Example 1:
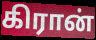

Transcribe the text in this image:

கிரான்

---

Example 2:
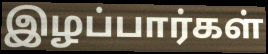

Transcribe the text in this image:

இழப்பார்கள்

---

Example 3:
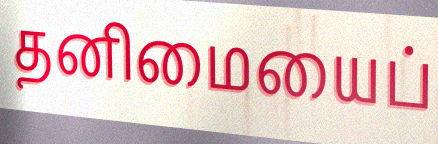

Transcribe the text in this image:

தனிமையைப்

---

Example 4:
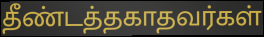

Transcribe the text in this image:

தீண்டத்தகாதவர்கள்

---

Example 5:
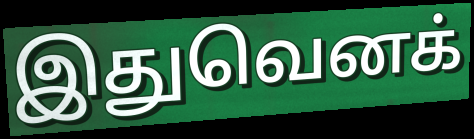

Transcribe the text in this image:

இதுவெனக்